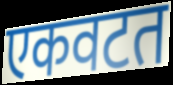
एकवटत